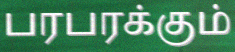
பரபரக்கும்